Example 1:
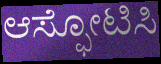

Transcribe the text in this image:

ಆಸ್ಫೋಟಿಸಿ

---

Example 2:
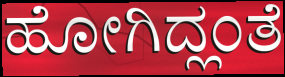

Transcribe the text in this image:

ಹೋಗಿದ್ಲಂತೆ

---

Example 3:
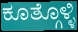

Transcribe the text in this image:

ಕೂತ್ಗೊಳ್ಳಿ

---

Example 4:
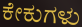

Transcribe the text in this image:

ಕೇಕುಗಳು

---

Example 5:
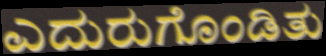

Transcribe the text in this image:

ಎದುರುಗೊಂಡಿತು